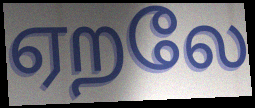
ஏறலே